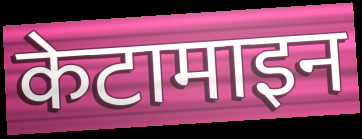
केटामाइन